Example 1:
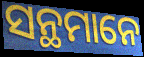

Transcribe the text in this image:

ସନ୍ଥମାନେ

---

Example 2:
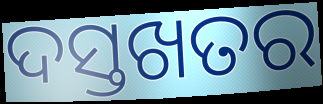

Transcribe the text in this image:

ଦସ୍ତଖତର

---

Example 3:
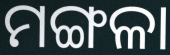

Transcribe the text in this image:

ମଙ୍ଗଳା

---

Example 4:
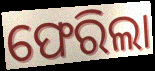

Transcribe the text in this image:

ଫେରିଲା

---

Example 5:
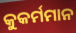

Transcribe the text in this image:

କୁକର୍ମମାନ